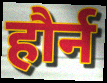
हौर्न